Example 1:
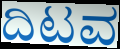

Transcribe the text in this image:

ದಿಟವ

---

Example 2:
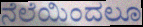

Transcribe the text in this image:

ನೆಲೆಯಿಂದಲೂ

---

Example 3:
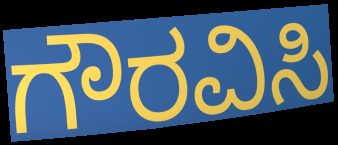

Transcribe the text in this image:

ಗೌರವಿಸಿ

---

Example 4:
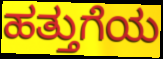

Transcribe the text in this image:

ಹತ್ತುಗೆಯ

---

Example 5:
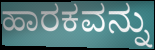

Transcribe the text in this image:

ಹಾರಕವನ್ನು